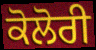
ਕੋਲੋਰੀ